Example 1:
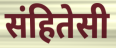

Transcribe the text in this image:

संहितेसी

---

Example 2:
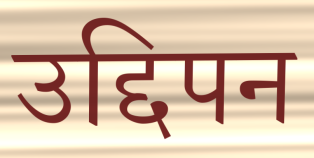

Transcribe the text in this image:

उद्दिपन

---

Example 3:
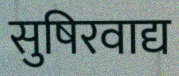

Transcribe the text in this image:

सुषिरवाद्य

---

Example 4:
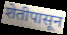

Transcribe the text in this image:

शेतीपासून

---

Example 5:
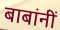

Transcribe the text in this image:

बाबांनीं